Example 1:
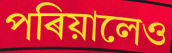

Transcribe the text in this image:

পৰিয়ালেও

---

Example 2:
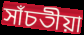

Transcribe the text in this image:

সাঁচতীয়া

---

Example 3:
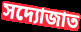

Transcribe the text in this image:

সদ্যোজাত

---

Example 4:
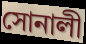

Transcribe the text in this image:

সোনালী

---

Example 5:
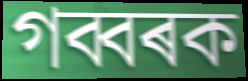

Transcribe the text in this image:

গব্বৰক